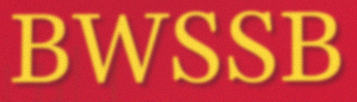
BWSSB